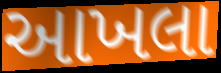
આખલા